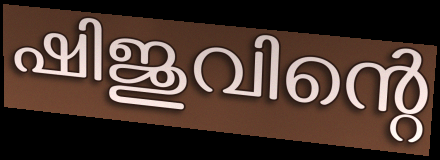
ഷിജുവിന്റെ